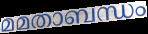
മമതാബന്ധം